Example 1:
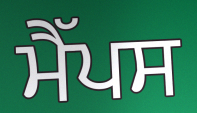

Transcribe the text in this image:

ਮੈੱਪਸ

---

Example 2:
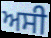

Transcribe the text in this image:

ਅਸੀ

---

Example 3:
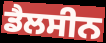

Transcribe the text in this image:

ਡੈਲਸੀਨ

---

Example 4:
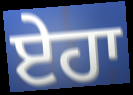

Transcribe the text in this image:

ਏਹਾ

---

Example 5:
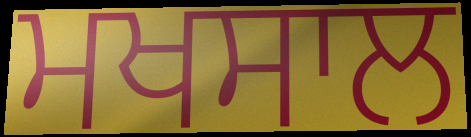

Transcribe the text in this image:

ਮਖਸਾਲ